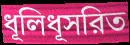
ধূলিধূসরিত